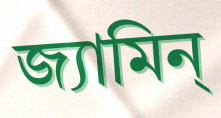
জ্যামিন্